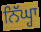
ਨਿੱਘ੍ਹਾ